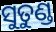
ସୁତୁଣ୍ଡ